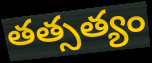
తత్సత్యం